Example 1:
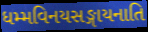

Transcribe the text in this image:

ધમ્મવિનયસઙ્ગાયનાતિ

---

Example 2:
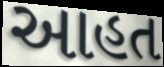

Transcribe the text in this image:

આહત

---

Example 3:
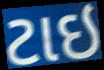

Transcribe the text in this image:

ટાઇ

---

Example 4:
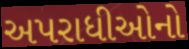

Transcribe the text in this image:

અપરાધીઓનો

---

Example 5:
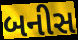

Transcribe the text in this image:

બનીસ